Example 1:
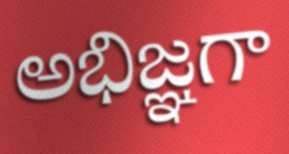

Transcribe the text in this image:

అభిజ్ఞగా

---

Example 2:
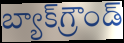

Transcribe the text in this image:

బ్యాక్‌గ్రౌండ్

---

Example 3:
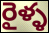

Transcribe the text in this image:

రైళ్ళ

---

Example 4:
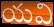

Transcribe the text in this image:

యవి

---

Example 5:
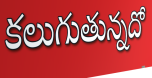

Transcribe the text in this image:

కలుగుతున్నదో